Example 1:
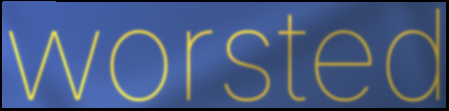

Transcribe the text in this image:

worsted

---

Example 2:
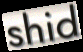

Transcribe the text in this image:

shid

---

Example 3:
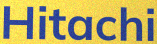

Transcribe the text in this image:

Hitachi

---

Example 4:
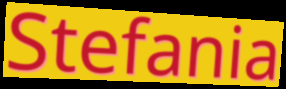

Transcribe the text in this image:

Stefania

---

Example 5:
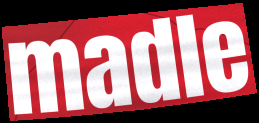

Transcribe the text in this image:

madle